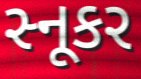
સ્નૂકર